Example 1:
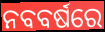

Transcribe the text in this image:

ନବବର୍ଷରେ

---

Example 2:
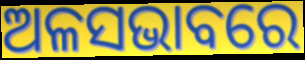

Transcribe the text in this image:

ଅଳସଭାବରେ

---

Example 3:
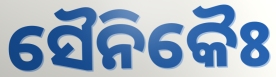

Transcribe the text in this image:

ସୈନିକୈଃ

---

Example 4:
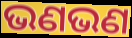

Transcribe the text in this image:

ଭଣଭଣ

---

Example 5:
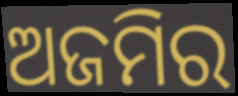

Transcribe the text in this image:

ଅଜମିର